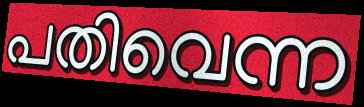
പതിവെന്ന